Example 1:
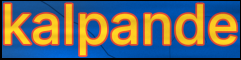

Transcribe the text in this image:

kalpande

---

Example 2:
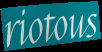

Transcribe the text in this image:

riotous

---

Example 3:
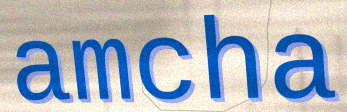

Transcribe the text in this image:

amcha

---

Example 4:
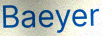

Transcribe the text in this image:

Baeyer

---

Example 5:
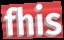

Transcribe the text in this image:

fhis